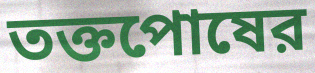
তক্তপোষের